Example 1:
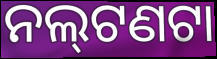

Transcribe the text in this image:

ନଲ୍‍ଟଣଟା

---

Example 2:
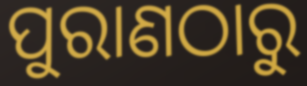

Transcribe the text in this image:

ପୁରାଣଠାରୁ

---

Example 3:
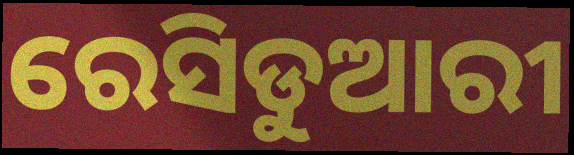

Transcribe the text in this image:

ରେସିଡୁଆରୀ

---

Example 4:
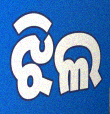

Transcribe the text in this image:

ଝିଲ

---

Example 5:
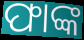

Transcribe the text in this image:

ଫାଙ୍କ